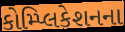
કોમ્પ્લિકેશનના